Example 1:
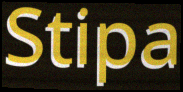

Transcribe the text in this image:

Stipa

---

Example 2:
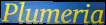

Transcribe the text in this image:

Plumeria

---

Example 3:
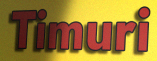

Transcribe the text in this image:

Timuri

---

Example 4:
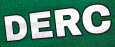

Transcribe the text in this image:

DERC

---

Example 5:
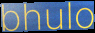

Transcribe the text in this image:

bhulo